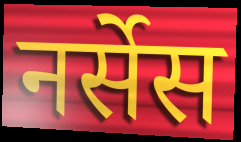
नर्सेस